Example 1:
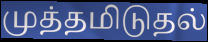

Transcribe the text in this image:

முத்தமிடுதல்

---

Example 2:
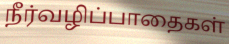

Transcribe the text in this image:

நீர்வழிப்பாதைகள்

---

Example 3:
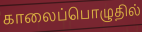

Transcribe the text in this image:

காலைப்பொழுதில்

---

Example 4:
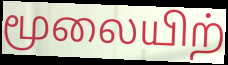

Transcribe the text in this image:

மூலையிற்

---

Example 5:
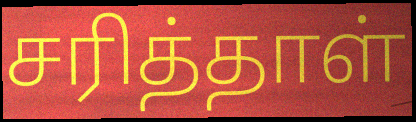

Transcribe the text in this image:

சரித்தாள்